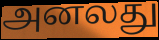
அனலது